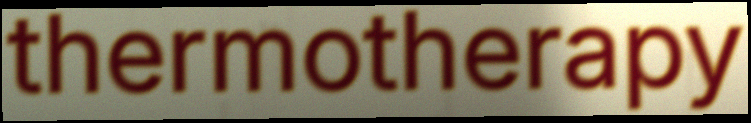
thermotherapy